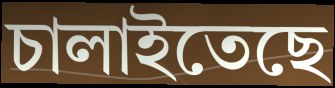
চালাইতেছে